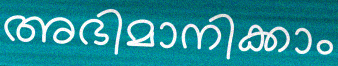
അഭിമാനിക്കാം